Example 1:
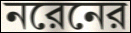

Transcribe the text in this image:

নরেনের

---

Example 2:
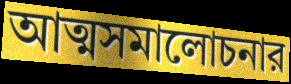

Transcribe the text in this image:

আত্মসমালোচনার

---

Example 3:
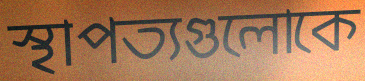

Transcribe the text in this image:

স্থাপত্যগুলোকে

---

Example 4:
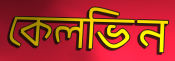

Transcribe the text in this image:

কেলভিন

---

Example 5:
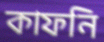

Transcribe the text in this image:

কাফনি